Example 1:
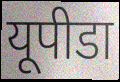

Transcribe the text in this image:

यूपीडा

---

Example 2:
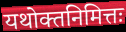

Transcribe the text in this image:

यथोक्तनिमित्तः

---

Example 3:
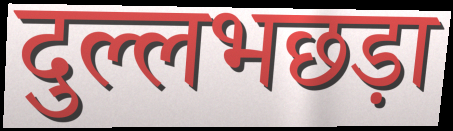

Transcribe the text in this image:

दुल्लभछड़ा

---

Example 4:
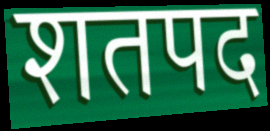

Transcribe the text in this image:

शतपद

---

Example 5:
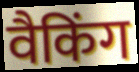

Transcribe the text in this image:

वैकिंग